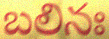
బలినః